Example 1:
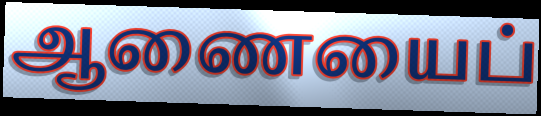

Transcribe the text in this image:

ஆணையைப்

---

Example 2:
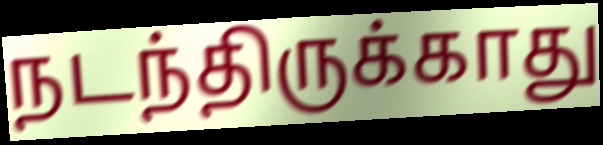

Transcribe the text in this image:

நடந்திருக்காது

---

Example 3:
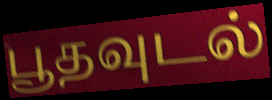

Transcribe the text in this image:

பூதவுடல்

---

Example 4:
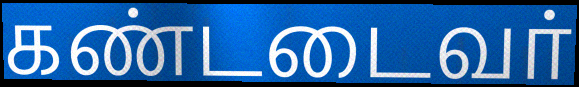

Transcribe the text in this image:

கண்டடைவர்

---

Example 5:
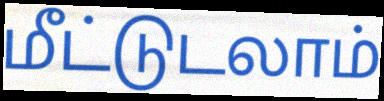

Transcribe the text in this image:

மீட்டுடலாம்